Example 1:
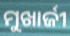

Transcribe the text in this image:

ମୁଖାର୍ଜୀ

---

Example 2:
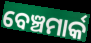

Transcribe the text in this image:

ବେଞ୍ଚମାର୍କ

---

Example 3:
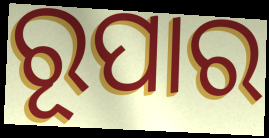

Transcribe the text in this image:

ରୂପାର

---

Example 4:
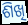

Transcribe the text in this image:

ଶିଖି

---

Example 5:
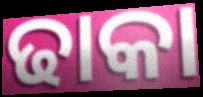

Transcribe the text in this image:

ଢାକା